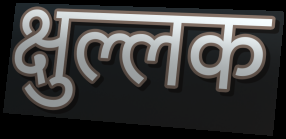
क्षुल्लक